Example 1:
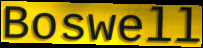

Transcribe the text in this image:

Boswell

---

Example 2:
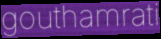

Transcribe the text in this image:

gouthamrati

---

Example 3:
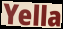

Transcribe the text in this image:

Yella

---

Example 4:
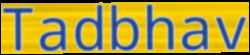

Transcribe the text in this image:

Tadbhav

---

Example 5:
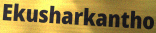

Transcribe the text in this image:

Ekusharkantho